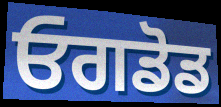
ਓਗਡੋਡ